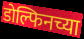
डोल्फिनच्या